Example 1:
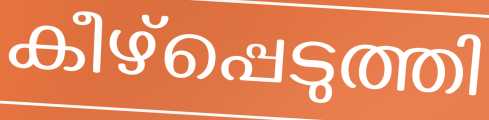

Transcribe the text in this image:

കീഴ്പ്പെടുത്തി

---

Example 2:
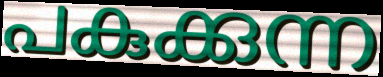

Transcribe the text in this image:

പകുക്കുന്ന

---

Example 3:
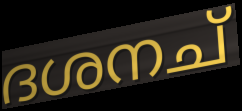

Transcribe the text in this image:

ദശനച്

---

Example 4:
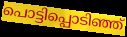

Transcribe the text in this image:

പൊട്ടിപ്പൊടിഞ്ഞ്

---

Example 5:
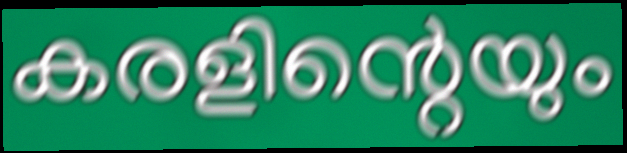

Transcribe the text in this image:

കരളിന്റെയും